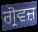
ਗ੍ਰੋਵਜ਼